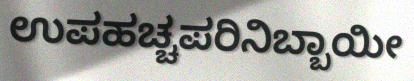
ಉಪಹಚ್ಚಪರಿನಿಬ್ಬಾಯೀ